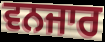
ਵਨਜਾਰ